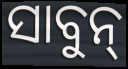
ସାବୁନ୍